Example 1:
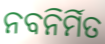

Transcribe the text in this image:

ନବନିର୍ମିତ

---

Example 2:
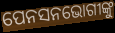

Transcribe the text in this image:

ପେନସନଭୋଗୀଙ୍କୁ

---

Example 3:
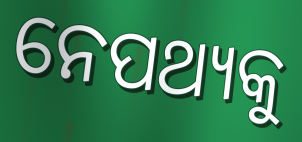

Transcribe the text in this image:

ନେପଥ୍ୟକୁ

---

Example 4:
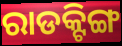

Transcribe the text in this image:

ରାଡକ୍ଟିଙ୍ଗ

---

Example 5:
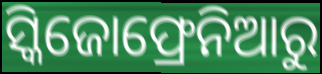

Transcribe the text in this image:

ସ୍କିଜୋଫ୍ରେନିଆରୁ